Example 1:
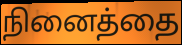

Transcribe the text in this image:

நினைத்தை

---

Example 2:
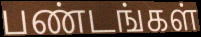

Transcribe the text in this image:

பண்டங்கள்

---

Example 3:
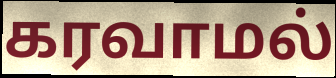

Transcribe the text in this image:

கரவாமல்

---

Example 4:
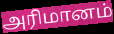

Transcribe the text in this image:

அரிமானம்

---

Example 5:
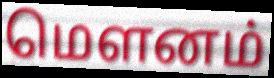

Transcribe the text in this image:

மெளனம்